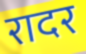
रादर